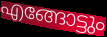
എങ്ങോട്ടും